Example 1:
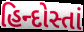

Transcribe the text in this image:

હિન્દોસ્તાં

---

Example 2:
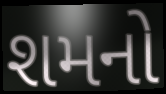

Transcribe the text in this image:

શમનો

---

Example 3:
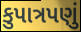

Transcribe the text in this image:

કુપાત્રપણું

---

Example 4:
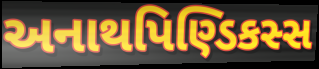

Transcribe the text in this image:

અનાથપિણ્ડિકસ્સ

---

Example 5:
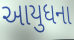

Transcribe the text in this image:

આયુધના